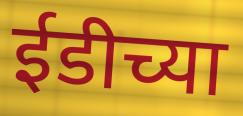
ईडीच्या